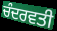
ਚੰਦਰਵਤੀ